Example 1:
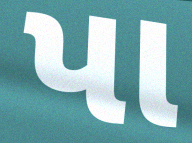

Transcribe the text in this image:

પા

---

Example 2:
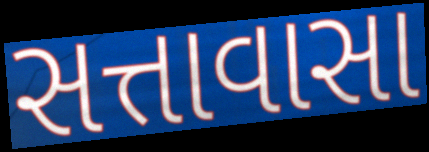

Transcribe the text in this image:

સત્તાવાસા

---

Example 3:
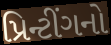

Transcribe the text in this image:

પ્રિન્ટીંગનો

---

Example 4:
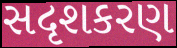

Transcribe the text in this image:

સદૃશકરણ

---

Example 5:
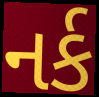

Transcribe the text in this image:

નર્ક